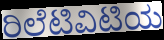
ರಿಲೆಟಿವಿಟಿಯ